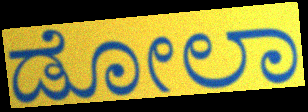
ಡೋಲಾ